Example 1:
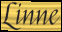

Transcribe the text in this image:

Linne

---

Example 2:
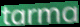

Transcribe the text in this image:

tarma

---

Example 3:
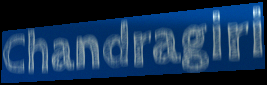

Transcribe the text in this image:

Chandragiri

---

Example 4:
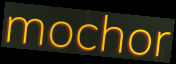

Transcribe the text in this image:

mochor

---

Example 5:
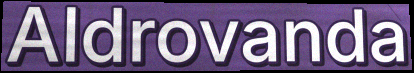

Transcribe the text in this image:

Aldrovanda